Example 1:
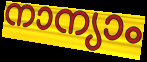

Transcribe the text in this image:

നാന്യാം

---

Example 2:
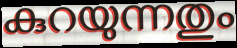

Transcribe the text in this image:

കുറയുന്നതും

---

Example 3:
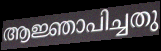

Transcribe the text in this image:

ആജ്ഞാപിച്ചതു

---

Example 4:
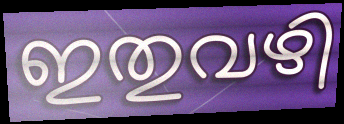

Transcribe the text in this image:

ഇതുവഴി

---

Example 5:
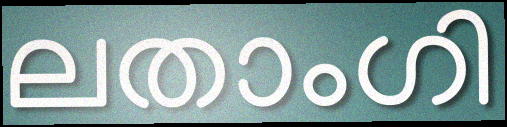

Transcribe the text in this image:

ലതാംഗി